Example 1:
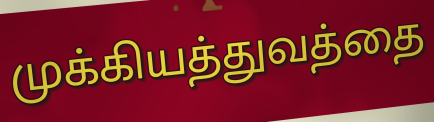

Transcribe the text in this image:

முக்கியத்துவத்தை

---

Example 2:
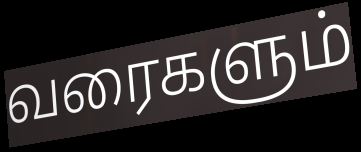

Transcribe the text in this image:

வரைகளும்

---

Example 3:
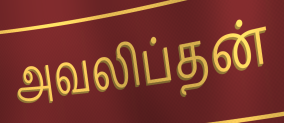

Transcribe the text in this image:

அவலிப்தன்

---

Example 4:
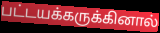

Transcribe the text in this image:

பட்டயக்கருக்கினால்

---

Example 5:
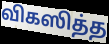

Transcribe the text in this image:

விகஸித்த